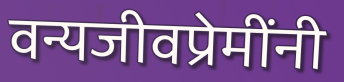
वन्यजीवप्रेमींनी